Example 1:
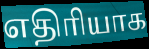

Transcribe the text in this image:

எதிரியாக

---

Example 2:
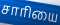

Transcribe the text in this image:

சாரியை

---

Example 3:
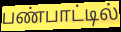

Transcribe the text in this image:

பண்பாட்டில்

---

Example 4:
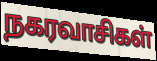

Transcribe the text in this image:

நகரவாசிகள்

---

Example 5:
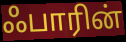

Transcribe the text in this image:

ஃபாரின்